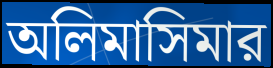
অলিমাসিমার